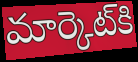
మార్కెట్‌కి